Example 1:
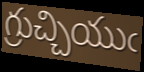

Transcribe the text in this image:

గ్రుచ్చియుఁ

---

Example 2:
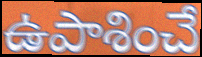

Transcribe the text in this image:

ఉపాశించే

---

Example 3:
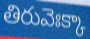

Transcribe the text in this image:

తిరువెఃక్కా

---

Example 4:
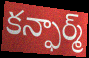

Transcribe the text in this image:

కన్ఫార్మ్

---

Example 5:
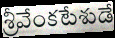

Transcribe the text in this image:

శ్రీవేంకటేశుడే